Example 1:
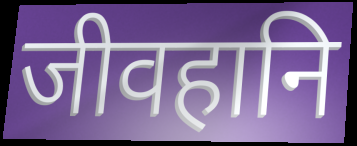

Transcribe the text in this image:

जीवहानि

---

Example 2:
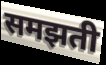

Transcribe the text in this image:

समझती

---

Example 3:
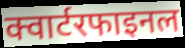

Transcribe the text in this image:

क्वार्टरफाइनल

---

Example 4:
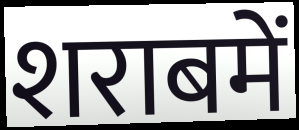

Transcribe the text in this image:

शराबमें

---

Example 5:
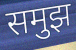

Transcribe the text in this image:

समुझ